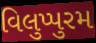
વિલુપ્પુરમ